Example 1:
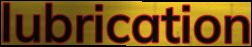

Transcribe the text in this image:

lubrication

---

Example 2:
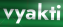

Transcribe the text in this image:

vyakti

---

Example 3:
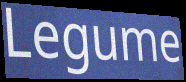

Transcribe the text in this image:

Legume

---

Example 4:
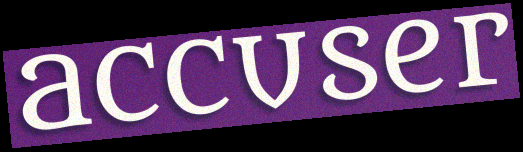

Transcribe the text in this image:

accuser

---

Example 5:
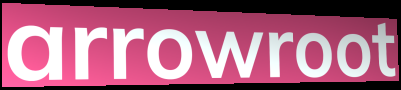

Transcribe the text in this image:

arrowroot